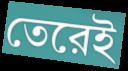
তেরেই